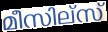
മീസില്സ്